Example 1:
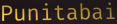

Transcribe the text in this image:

Punitabai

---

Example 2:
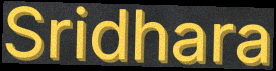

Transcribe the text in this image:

Sridhara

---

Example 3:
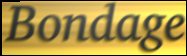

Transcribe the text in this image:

Bondage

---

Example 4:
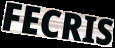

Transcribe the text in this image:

FECRIS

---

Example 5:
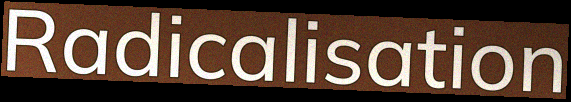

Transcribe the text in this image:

Radicalisation